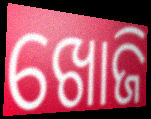
ଖୋଜି